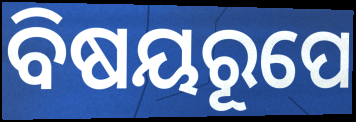
ବିଷୟରୂପେ